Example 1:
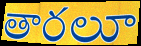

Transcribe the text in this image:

తారలూ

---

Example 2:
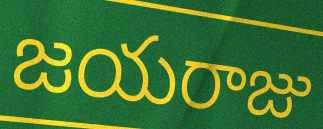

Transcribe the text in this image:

జయరాజు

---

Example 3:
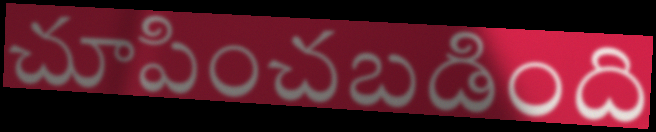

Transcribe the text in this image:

చూపించబడింది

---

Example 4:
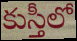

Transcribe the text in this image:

కుస్తీలో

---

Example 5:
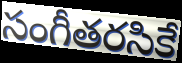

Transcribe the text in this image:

సంగీతరసికే